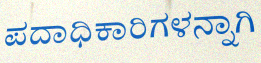
ಪದಾಧಿಕಾರಿಗಳನ್ನಾಗಿ